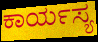
ಕಾರ್ಯಸ್ಯ